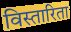
विस्तारिता